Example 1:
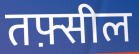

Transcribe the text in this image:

तफ़्सील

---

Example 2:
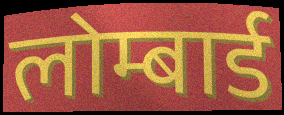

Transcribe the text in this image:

लोम्बार्ड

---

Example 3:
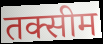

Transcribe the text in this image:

तक्सीम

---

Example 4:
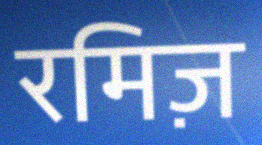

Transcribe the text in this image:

रमिज़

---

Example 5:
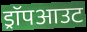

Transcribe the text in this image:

ड्रॉपआउट